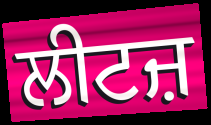
ਲੀਟਜ਼